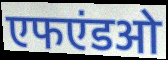
एफएंडओ